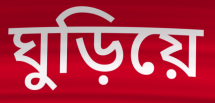
ঘুড়িয়ে